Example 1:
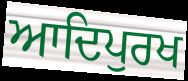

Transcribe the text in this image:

ਆਦਿਪੁਰਖ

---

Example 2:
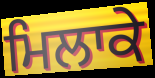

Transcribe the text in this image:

ਮਿਲਾਕੇ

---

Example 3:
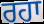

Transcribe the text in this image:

ਰਹਾ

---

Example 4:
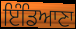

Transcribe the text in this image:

ਇੰਡਿਆਣਾ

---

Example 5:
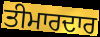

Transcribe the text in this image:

ਤੀਮਾਰਦਾਰ